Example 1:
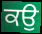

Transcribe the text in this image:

ਕਉ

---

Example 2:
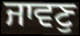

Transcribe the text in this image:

ਜਾਵਣੁ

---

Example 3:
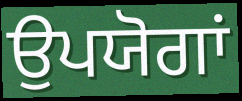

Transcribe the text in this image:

ਉਪਯੋਗਾਂ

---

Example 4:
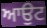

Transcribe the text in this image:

ਆਉਟ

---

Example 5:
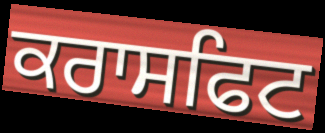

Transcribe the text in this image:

ਕਰਾਸਫਿਟ